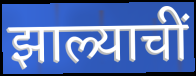
झाल्याचीं